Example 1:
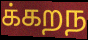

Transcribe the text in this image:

க்கறந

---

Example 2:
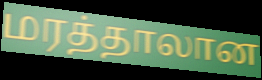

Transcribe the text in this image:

மரத்தாலான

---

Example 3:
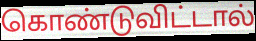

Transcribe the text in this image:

கொண்டுவிட்டால்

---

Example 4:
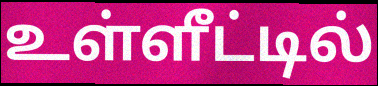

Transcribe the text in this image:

உள்ளீட்டில்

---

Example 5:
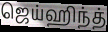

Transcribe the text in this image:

ஜெய்ஹிந்த்